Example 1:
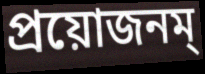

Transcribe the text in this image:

প্রয়োজনম্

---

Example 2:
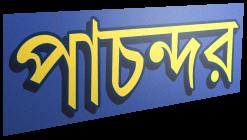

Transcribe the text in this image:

পাচন্দর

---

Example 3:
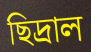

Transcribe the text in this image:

ছিদ্রাল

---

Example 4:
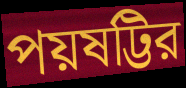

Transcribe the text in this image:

পয়ষট্টির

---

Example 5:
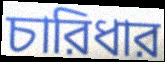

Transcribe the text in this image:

চারিধার